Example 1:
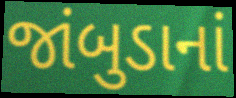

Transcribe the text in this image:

જાંબુડાનાં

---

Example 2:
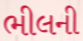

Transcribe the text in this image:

ભીલની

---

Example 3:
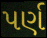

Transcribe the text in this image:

પર્ણ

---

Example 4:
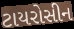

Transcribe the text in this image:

ટાયરોસીન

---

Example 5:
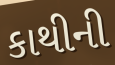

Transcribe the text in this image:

કાથીની